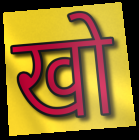
खो